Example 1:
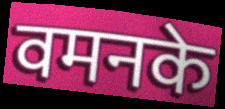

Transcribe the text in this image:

वमनके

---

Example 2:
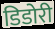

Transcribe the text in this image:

डिडोरी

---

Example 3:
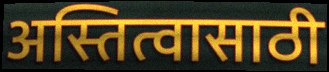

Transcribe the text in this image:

अस्तित्वासाठी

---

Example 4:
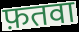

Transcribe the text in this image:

फ़तवा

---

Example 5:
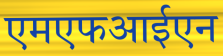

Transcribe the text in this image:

एमएफआईएन